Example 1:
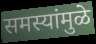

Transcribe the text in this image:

समस्यांमुळे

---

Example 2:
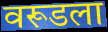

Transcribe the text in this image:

वरूडला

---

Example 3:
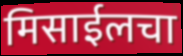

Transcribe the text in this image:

मिसाईलचा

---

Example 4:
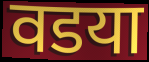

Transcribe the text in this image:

वडया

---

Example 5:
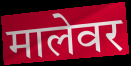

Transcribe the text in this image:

मालेवर